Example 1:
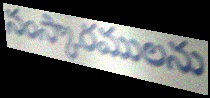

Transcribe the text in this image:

సంస్కారములను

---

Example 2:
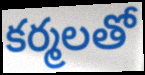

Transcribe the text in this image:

కర్మలతో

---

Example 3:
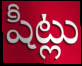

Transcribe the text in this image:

షీట్లు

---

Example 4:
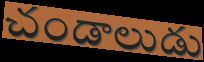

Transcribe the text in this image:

చండాలుడు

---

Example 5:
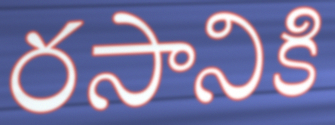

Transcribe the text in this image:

రసానికి